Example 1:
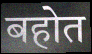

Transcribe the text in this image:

बहोत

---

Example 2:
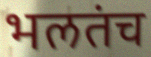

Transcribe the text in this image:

भलतंच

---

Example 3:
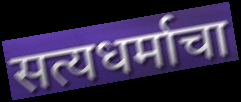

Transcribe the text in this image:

सत्यधर्माचा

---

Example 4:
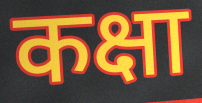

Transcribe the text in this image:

कक्षा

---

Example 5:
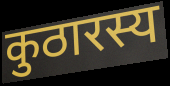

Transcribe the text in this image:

कुठारस्य